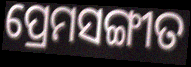
ପ୍ରେମସଙ୍ଗୀତ